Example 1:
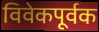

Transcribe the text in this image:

विवेकपूर्वक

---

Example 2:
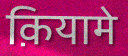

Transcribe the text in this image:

क़ियामे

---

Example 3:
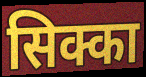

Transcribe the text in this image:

सिक्का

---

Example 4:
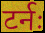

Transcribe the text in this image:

टर्नः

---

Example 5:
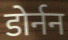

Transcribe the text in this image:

डोर्नन